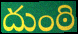
దుంఠి